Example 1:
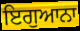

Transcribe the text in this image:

ਇਗੁਆਨਾ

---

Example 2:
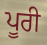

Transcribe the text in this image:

ਪੂਰੀ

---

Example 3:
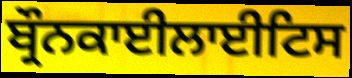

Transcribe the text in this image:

ਬ੍ਰੌਨਕਾਈਲਾਈਟਿਸ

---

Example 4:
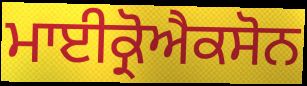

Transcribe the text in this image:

ਮਾਈਕ੍ਰੋਐਕਸੋਨ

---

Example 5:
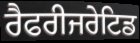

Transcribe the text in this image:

ਰੈਫਰੀਜਰੇਟਿਡ